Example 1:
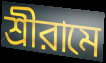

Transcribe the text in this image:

শ্রীরামে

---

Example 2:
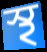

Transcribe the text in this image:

স্থ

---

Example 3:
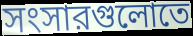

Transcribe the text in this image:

সংসারগুলোতে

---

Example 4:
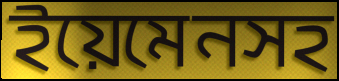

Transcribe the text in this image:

ইয়েমেনসহ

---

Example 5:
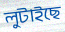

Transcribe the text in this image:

লুটাইছে